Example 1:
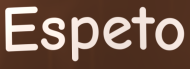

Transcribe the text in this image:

Espeto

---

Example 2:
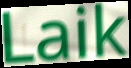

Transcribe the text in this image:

Laik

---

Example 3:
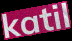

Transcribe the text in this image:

katil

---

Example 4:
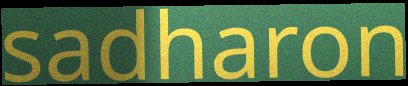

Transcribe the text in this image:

sadharon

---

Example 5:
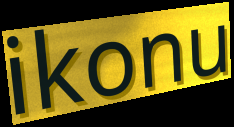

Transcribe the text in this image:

ikonu